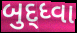
બુદ્ધ્વા